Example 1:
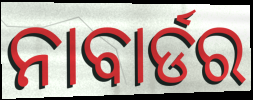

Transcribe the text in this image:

ନାବାର୍ଡର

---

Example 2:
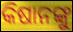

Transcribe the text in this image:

କିଷାନଙ୍କୁ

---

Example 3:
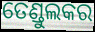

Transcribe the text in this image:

ତେଣ୍ଡୁଲକର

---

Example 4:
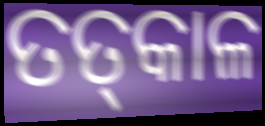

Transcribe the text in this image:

ତତ୍‌କାଳ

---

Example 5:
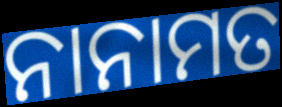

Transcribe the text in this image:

ନାନାମତ